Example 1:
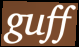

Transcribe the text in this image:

guff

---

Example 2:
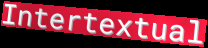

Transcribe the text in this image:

Intertextual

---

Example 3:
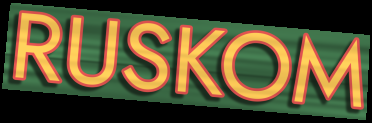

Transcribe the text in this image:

RUSKOM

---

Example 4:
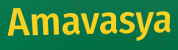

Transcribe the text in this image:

Amavasya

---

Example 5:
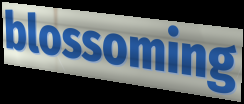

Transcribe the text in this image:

blossoming